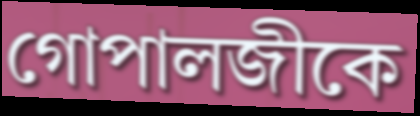
গোপালজীকে